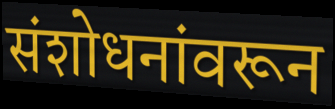
संशोधनांवरून